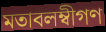
মতাবলম্বীগণ